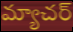
మ్యాచర్